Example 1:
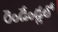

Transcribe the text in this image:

రెండేండ్లలో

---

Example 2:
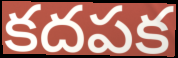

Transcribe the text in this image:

కదపక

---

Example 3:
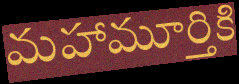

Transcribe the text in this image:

మహామూర్తికి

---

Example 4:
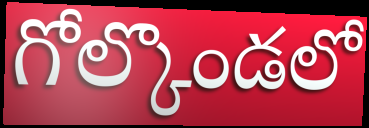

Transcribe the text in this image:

గోల్కొండలో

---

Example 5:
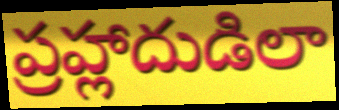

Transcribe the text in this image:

ప్రహ్లాదుడిలా